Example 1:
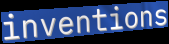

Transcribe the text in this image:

inventions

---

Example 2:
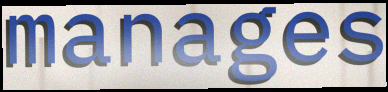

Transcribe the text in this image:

manages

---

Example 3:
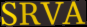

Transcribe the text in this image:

SRVA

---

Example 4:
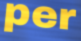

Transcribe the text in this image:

per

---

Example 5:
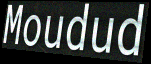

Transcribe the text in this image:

Moudud